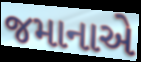
જમાનાએ